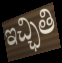
ఇచ్ఛితి